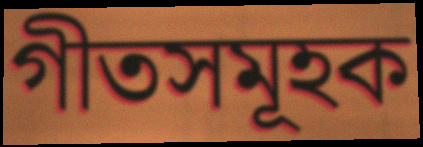
গীতসমূহক